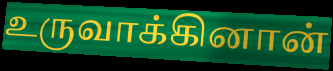
உருவாக்கினான்